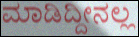
ಮಾಡಿದ್ದೀನಲ್ಲ